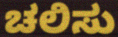
ಚಲಿಸು